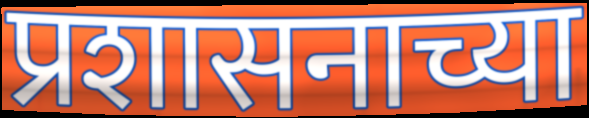
प्रशासनाच्या